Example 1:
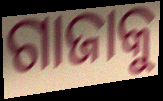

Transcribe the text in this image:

ଗାଜାକୁ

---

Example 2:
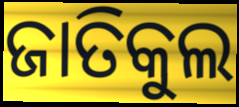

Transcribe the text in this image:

ଜାତିକୁଲ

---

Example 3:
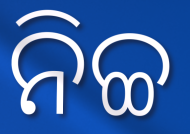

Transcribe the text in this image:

ନିଚ୍ଚ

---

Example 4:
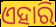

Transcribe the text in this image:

ଏହାରି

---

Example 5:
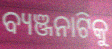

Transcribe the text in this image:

ବ୍ୟଞ୍ଜନାଟିକୁ